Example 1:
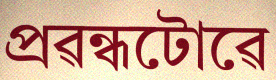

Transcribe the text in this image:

প্ৰৱন্ধটোৱে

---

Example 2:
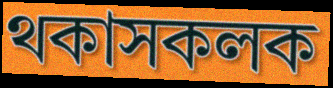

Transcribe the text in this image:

থকাসকলক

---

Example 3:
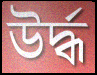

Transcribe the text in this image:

উৰ্দ্ধ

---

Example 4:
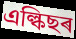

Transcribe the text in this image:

এল্কিছৰ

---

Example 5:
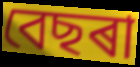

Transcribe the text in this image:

বেছৰা